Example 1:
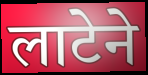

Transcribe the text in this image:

लाटेने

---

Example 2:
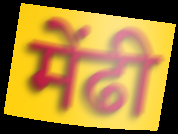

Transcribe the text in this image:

मेंढी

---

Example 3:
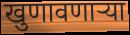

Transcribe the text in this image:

खुणावणाऱ्या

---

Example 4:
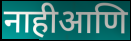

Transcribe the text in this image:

नाहीआणि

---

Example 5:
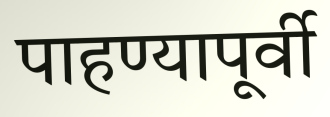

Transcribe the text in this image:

पाहण्यापूर्वी